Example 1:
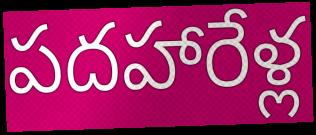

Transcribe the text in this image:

పదహారేళ్ల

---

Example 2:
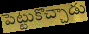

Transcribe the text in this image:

పెట్టుకొచ్చాడు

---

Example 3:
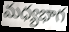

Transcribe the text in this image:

మధ్యభాగ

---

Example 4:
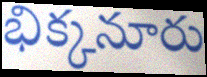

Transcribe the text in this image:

భిక్కనూరు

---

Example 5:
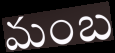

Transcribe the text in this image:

మంబ